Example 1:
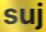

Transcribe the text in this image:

suj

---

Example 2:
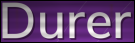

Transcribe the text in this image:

Durer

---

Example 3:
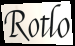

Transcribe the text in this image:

Rotlo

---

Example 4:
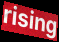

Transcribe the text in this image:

rising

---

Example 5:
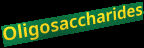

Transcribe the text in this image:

Oligosaccharides